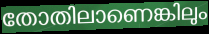
തോതിലാണെങ്കിലും